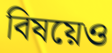
বিষয়েও